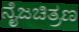
ನೈಜಚಿತ್ರಣ